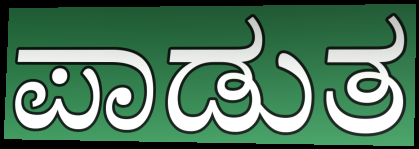
ಪಾಡುತ